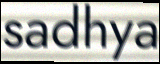
sadhya